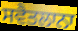
ਸਵੈਤਲਾਨਾ